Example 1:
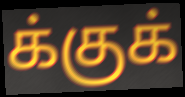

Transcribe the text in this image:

க்குக்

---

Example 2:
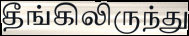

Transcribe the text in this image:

தீங்கிலிருந்து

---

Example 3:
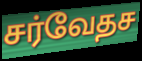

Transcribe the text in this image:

சர்வேதச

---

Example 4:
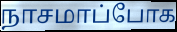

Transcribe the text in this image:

நாசமாப்போக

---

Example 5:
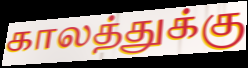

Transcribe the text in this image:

காலத்துக்கு